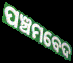
ପଞ୍ଚମବେଦ